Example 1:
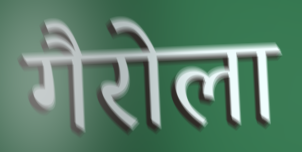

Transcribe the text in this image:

गैरोला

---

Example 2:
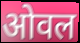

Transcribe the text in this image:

ओवल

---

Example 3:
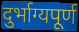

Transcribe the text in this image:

दुर्भाग्यपूर्ण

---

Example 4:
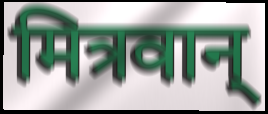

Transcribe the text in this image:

मित्रवान्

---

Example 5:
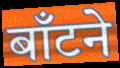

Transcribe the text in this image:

बाँटने